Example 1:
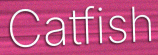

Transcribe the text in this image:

Catfish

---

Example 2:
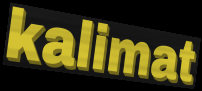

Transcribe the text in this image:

kalimat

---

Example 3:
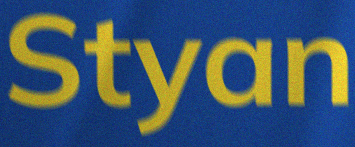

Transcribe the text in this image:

Styan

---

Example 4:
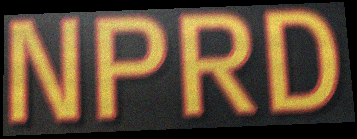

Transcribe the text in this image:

NPRD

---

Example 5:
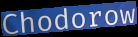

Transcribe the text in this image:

Chodorow